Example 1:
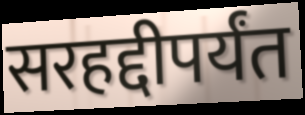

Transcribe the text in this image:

सरहद्दीपर्यंत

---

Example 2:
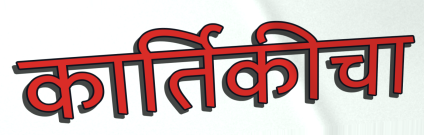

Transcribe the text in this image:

कार्तिकीचा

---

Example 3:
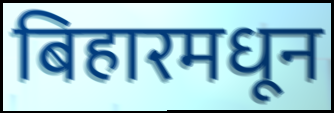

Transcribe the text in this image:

बिहारमधून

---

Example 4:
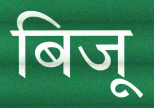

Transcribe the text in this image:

बिजू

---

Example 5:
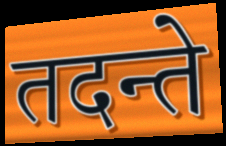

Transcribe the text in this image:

तदन्ते